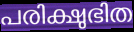
പരിക്ഷുഭിത